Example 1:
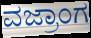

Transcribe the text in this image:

ವಜ್ರಾಂಗ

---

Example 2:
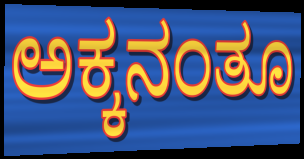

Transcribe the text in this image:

ಅಕ್ಕನಂತೂ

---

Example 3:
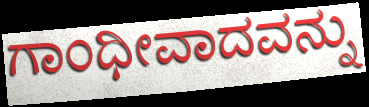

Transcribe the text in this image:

ಗಾಂಧೀವಾದವನ್ನು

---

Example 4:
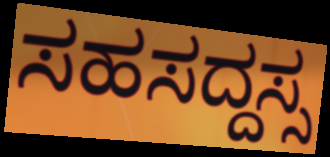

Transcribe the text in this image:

ಸಹಸದ್ದಸ್ಸ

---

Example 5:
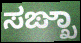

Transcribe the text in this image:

ಸಙ್ಖಾ